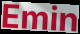
Emin